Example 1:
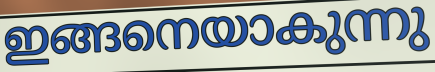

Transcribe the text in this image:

ഇങ്ങനെയാകുന്നു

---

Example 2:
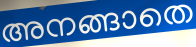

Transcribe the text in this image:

അനങ്ങാതെ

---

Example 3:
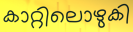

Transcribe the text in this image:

കാറ്റിലൊഴുകി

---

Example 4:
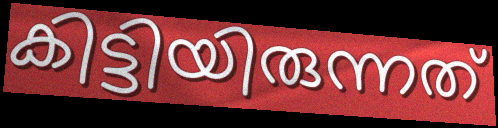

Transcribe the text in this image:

കിട്ടിയിരുന്നത്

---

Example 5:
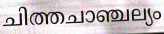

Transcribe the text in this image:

ചിത്തചാഞ്ചല്യം